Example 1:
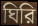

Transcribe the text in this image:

ঘিরি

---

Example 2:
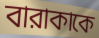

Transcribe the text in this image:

বারাকাকে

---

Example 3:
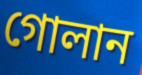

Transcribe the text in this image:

গোলান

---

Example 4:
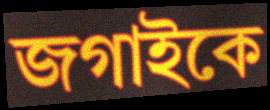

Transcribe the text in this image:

জগাইকে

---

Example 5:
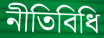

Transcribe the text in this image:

নীতিবিধি